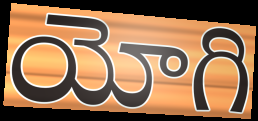
యోగి